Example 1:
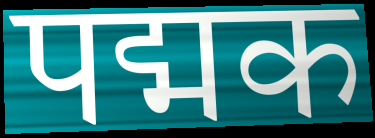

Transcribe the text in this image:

पद्मक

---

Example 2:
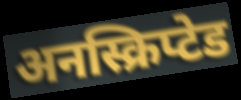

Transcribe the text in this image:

अनस्क्रिप्टेड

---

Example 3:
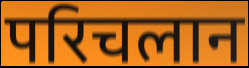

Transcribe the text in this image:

परिचलान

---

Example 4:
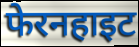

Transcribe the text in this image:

फेरनहाइट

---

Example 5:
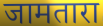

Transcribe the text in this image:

जामतारा